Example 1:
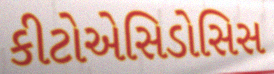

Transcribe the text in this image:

કીટોએસિડોસિસ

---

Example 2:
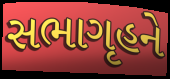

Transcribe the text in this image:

સભાગૃહને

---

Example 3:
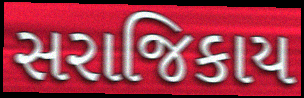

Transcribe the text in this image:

સરાજિકાય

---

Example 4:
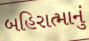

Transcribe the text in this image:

બહિરાત્માનું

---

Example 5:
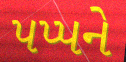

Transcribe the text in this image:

પપ્પને